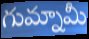
గుమ్నామీ